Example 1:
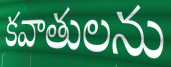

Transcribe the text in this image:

కవాతులను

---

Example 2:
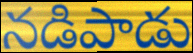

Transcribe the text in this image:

నడిపాడు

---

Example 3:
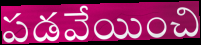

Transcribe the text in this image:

పడవేయించి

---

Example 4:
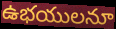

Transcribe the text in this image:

ఉభయులనూ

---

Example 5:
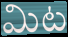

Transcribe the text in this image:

మిట